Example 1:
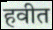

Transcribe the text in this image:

हवीत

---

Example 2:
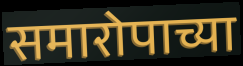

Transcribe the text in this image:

समारोपाच्या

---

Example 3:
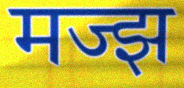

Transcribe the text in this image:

मज्झ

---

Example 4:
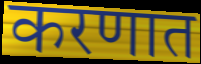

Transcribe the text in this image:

करणात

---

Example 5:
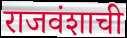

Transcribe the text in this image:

राजवंशाची